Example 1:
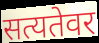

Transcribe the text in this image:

सत्यतेवर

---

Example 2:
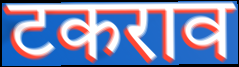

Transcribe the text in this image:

टकराव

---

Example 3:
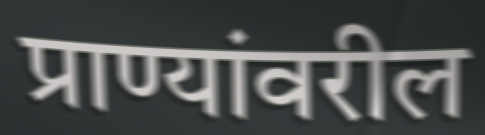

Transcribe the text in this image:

प्राण्यांवरील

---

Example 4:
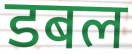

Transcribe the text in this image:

डबल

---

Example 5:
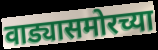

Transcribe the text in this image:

वाड्यासमोरच्या